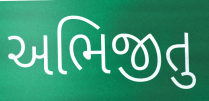
અભિજીતુ